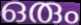
ഒരും